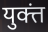
युक्तं